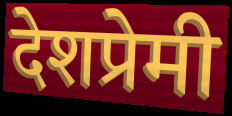
देशप्रेमी